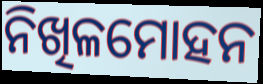
ନିଖିଳମୋହନ